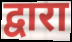
द्वारा